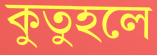
কুতুহলে